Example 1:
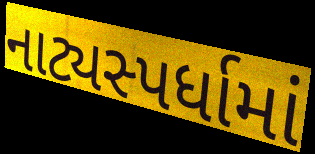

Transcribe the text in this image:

નાટ્યસ્પર્ધામાં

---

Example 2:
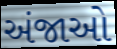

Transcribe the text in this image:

અંજાઓ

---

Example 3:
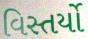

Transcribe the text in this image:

વિસ્તર્યો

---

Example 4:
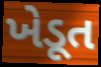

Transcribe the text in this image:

ખેડૂત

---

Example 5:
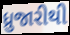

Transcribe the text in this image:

ધ્રુજારીથી